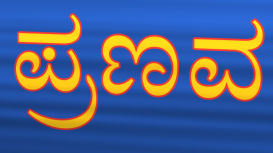
ಪ್ರಣವ